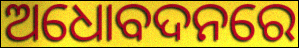
ଅଧୋବଦନରେ